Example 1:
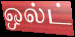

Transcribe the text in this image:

ஒல்ட்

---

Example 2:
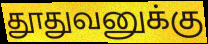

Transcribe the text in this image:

தூதுவனுக்கு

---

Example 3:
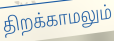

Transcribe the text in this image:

திறக்காமலும்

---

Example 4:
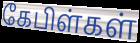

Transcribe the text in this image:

கேபிள்கள்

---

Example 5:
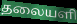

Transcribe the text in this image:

தலையளி